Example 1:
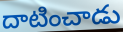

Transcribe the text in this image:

దాటించాడు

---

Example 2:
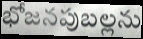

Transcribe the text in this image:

భోజనపుబల్లను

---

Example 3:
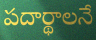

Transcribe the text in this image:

పదార్థాలనే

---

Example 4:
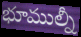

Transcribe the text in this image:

భూముల్నీ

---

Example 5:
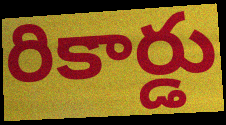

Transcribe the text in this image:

రికార్డు